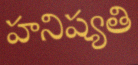
హనిష్యతి